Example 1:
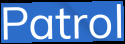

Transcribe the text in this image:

Patrol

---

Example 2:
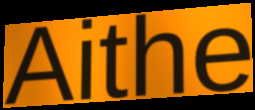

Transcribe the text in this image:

Aithe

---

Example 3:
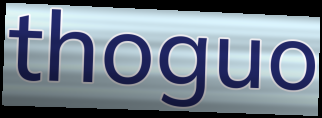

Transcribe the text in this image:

thoguo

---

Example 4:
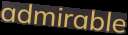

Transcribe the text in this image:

admirable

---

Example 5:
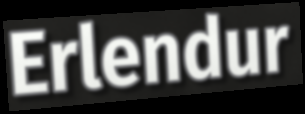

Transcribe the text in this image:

Erlendur